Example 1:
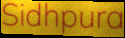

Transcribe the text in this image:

Sidhpura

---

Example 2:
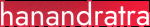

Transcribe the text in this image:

hanandratra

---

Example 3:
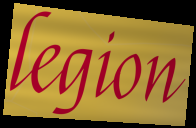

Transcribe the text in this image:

legion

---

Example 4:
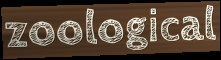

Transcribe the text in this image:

zoological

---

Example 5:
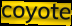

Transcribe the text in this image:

coyote